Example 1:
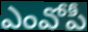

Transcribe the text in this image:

ఎంవోపీ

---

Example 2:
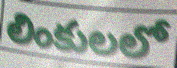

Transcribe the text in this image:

లింకులలో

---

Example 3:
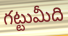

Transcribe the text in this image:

గట్టుమీది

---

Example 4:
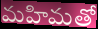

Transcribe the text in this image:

మహిమతో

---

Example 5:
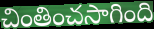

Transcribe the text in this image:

చింతించసాగింది